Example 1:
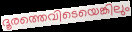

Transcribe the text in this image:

ദൂരത്തെവിടെയെങ്കിലും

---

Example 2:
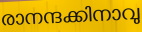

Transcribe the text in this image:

രാനന്ദക്കിനാവു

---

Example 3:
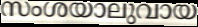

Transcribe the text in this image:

സംശയാലുവായ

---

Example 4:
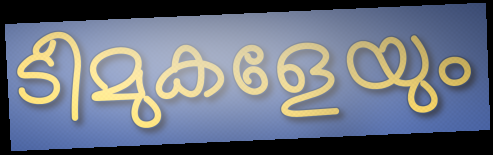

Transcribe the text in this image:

ടീമുകളേയും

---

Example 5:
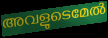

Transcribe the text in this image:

അവളുടെമേൽ